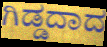
ಗಿಡ್ಡದಾದ